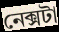
নেক্সটা